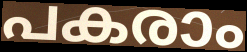
പകരാം